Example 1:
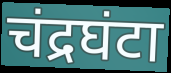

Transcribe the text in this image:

चंद्रघंटा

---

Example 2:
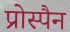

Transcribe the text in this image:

प्रोस्पैन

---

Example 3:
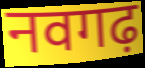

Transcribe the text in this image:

नवगढ़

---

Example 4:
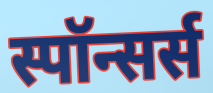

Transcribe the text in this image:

स्पॉन्सर्स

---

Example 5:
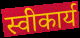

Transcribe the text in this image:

स्वीकार्य